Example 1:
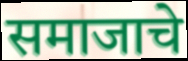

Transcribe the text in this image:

समाजाचे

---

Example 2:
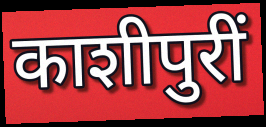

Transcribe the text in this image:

काशीपुरीं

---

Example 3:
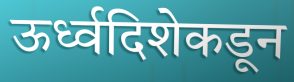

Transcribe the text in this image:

ऊर्ध्वदिशेकडून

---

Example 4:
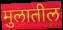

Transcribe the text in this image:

मुलातील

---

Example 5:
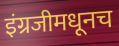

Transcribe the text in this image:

इंग्रजीमधूनच